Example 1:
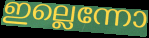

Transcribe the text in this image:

ഇല്ലെന്നോ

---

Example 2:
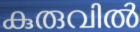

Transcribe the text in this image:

കുരുവിൽ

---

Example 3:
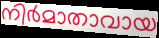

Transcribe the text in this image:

നിർമാതാവായ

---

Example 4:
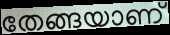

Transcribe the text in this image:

തേങ്ങയാണ്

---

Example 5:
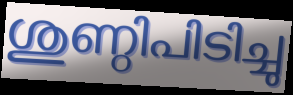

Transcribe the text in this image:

ശുണ്ഠിപിടിച്ചു